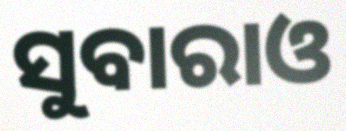
ସୁବାରାଓ